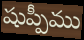
షుప్పీము